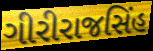
ગીરીરાજસિંહ